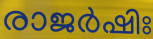
രാജർഷിഃ